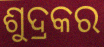
ଶୁଦ୍ରକର